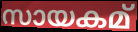
സായകമ്